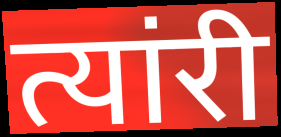
त्यांरी